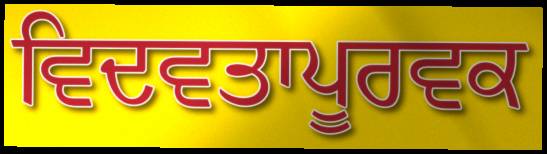
ਵਿਦਵਤਾਪੂਰਵਕ